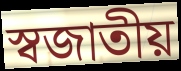
স্বজাতীয়